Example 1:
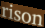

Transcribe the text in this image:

rison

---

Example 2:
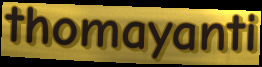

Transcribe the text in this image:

thomayanti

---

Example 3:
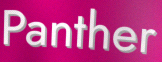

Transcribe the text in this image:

Panther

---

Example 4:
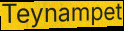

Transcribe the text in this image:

Teynampet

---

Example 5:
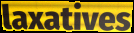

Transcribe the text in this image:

laxatives